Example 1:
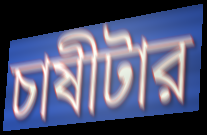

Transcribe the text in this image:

চাষীটার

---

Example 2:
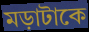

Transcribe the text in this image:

মড়াটাকে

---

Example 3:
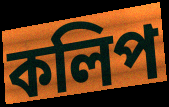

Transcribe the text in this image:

কলিপ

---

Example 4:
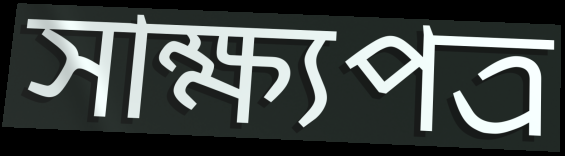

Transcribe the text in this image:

সাক্ষ্যপত্র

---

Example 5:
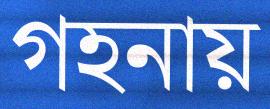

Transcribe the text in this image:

গহনায়